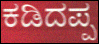
ಕಡಿದಪ್ಪ